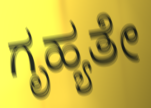
ಗೃಹ್ಯತೇ